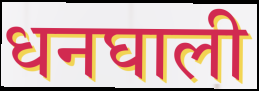
धनघाली